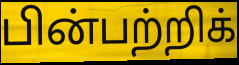
பின்பற்றிக்